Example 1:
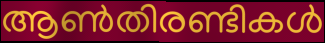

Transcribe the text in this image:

ആൺതിരണ്ടികൾ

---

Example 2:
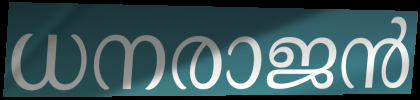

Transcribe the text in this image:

ധനരാജൻ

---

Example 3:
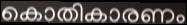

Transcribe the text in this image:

കൊതികാരണം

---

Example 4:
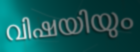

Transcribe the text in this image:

വിഷയിയും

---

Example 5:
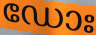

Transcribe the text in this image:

ഡോഃ